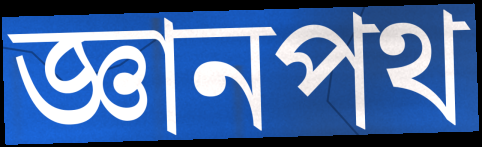
জ্ঞানপথ